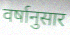
वर्षानुसार